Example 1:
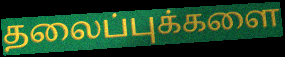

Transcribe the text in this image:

தலைப்புக்களை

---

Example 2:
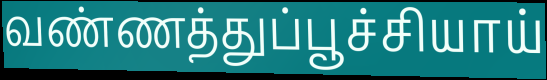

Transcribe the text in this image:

வண்ணத்துப்பூச்சியாய்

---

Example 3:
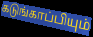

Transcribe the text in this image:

கடுங்காப்பியும்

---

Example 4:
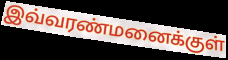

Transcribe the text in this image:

இவ்வரண்மனைக்குள்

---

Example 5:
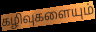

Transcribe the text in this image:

கழிவுகளையும்